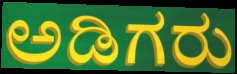
ಅಡಿಗರು